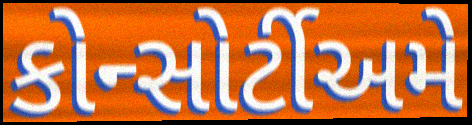
કોન્સોર્ટીઅમે